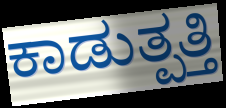
ಕಾಡುತ್ಪತ್ತಿ